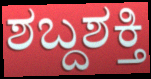
ಶಬ್ದಶಕ್ತಿ